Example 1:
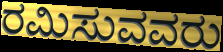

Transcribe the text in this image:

ರಮಿಸುವವರು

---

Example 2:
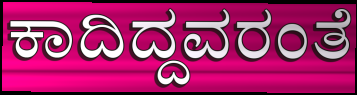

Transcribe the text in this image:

ಕಾದಿದ್ದವರಂತೆ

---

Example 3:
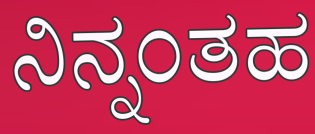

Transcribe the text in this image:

ನಿನ್ನಂತಹ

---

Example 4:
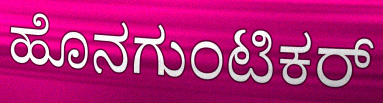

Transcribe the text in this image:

ಹೊನಗುಂಟಿಕರ್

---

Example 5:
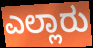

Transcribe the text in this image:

ಎಲ್ಲಾರು